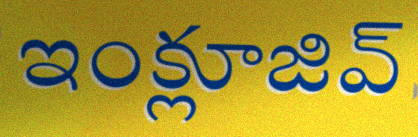
ఇంక్లూజివ్